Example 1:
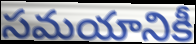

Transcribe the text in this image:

సమయానికీ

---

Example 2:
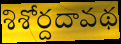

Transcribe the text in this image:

శిశోర్దదావథ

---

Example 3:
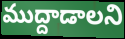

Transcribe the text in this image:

ముద్దాడాలని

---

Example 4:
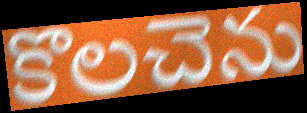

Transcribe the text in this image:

కొలచెను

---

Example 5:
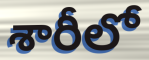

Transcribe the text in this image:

శారీలో